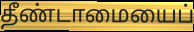
தீண்டாமையைப்